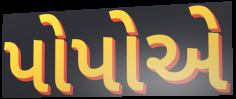
પોપોએ